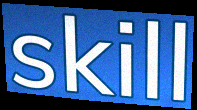
skill